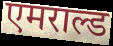
एमराल्‍ड